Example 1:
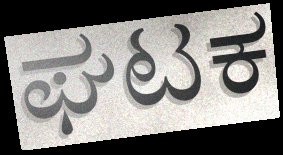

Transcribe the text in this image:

ಘಟಕ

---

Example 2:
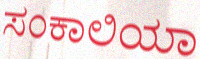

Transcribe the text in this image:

ಸಂಕಾಲಿಯಾ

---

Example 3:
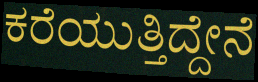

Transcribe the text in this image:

ಕರೆಯುತ್ತಿದ್ದೇನೆ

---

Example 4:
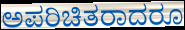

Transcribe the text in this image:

ಅಪರಿಚಿತರಾದರೂ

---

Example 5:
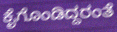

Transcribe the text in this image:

ಕೈಗೊಂಡಿದ್ದರಂತೆ